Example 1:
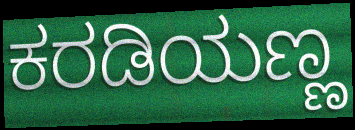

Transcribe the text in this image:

ಕರಡಿಯಣ್ಣ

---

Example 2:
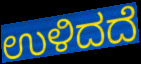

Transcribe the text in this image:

ಉಳಿದದೆ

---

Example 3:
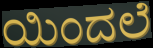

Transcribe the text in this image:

ಯಿಂದಲೆ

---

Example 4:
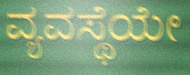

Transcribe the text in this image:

ವ್ಯವಸ್ಥೆಯೇ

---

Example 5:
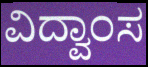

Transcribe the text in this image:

ವಿದ್ವಾಂಸ